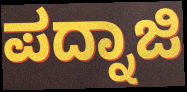
ಪದ್ನಾಜಿ